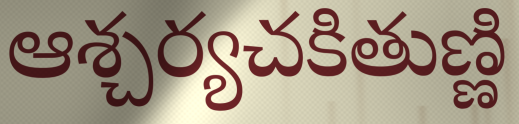
ఆశ్చర్యచకితుణ్ణి